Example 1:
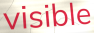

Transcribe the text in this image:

visible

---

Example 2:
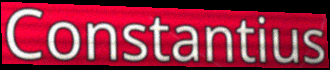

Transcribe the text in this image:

Constantius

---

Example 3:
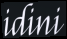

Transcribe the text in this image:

idini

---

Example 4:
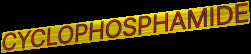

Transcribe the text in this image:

CYCLOPHOSPHAMIDE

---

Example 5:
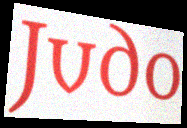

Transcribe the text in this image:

Judo